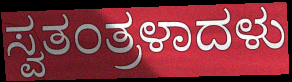
ಸ್ವತಂತ್ರಳಾದಳು